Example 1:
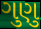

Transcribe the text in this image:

ગુણુ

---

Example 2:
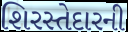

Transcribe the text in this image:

શિરસ્તેદારની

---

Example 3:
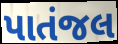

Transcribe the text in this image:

પાતંજલ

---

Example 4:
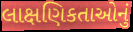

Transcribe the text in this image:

લાક્ષણિકતાઓનું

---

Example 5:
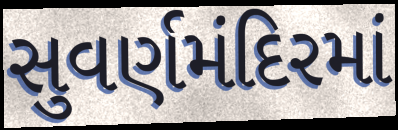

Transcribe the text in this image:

સુવર્ણમંદિરમાં